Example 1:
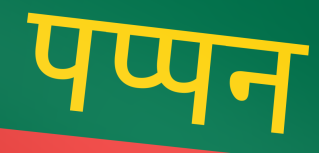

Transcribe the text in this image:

पप्पन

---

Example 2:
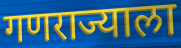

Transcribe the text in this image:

गणराज्याला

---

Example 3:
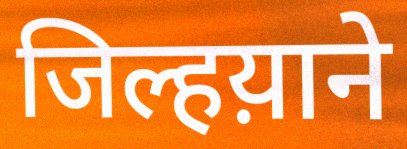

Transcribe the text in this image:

जिल्हय़ाने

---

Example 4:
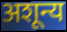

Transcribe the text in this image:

अशून्य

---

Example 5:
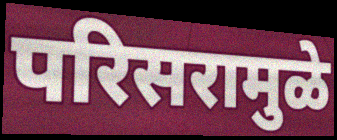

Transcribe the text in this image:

परिसरामुळे